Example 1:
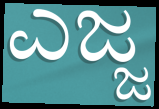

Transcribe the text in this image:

ಎಜ್ಜ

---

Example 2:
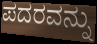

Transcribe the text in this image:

ಪದರವನ್ನು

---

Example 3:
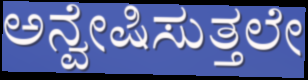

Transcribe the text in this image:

ಅನ್ವೇಷಿಸುತ್ತಲೇ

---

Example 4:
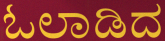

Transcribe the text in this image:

ಓಲಾಡಿದ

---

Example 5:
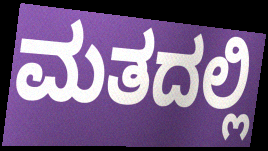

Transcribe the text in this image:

ಮತದಲ್ಲಿ